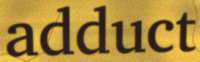
adduct